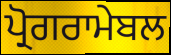
ਪ੍ਰੋਗਰਾਮੇਬਲ